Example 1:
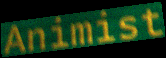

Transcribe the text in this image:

Animist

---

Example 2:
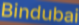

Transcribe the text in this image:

Bindubai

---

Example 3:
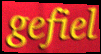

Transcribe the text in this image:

gefiel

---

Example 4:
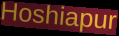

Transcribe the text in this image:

Hoshiapur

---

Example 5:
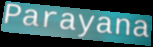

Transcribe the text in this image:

Parayana